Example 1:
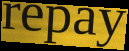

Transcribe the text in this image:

repay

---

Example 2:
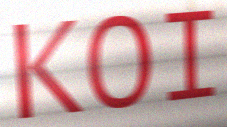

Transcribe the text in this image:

KOI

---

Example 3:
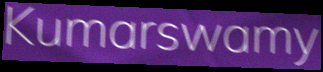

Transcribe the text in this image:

Kumarswamy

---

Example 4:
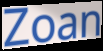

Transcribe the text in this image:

Zoan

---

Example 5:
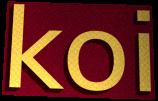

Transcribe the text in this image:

koi